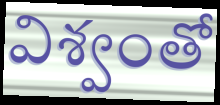
విశ్వంతో